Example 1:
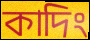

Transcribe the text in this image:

কাদিং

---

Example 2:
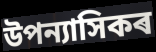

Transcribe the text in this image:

উপন্যাসিকৰ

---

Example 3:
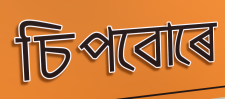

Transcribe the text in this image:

চিপবোৰে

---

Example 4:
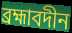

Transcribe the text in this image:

ব্ৰহ্মাবদীন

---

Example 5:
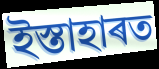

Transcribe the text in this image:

ইস্তাহাৰত